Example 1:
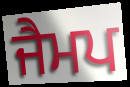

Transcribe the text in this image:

ਜੈਮਪ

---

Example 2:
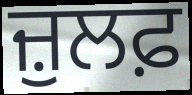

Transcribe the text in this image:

ਜ਼ੁਲਫ਼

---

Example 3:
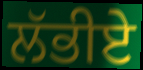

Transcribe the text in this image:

ਲੱਭੀਏ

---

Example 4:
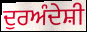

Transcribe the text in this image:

ਦੁਰਅੰਦੇਸ਼ੀ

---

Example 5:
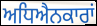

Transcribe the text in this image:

ਅਧਿਐਨਕਾਰਾਂ